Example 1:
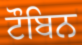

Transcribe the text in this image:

ਟੌਬਿਨ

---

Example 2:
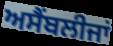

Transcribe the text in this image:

ਅਸੈਂਬਲੀਜਾਂ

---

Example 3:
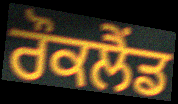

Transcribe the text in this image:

ਰੌਕਲੈਂਡ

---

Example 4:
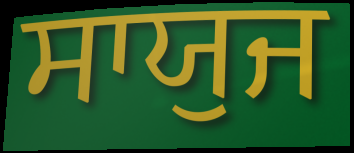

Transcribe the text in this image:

ਸਾਯੁਜ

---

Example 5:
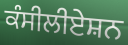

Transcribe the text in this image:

ਕੰਸੀਲੀਏਸ਼ਨ